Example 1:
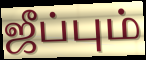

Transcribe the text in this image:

ஜீப்பும்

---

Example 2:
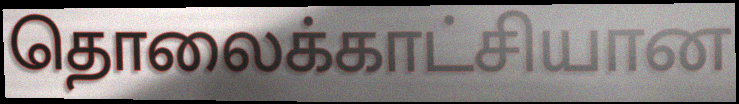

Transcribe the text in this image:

தொலைக்காட்சியான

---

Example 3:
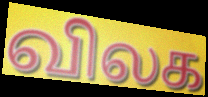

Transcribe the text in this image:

விலக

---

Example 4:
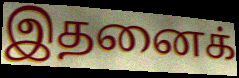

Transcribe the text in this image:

இதனைக்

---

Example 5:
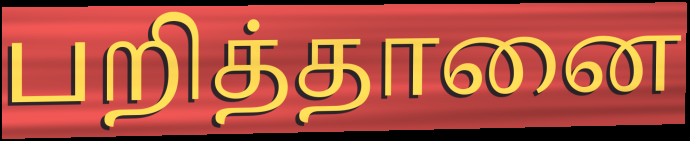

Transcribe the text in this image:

பறித்தானை